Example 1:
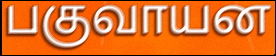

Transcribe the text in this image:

பகுவாயன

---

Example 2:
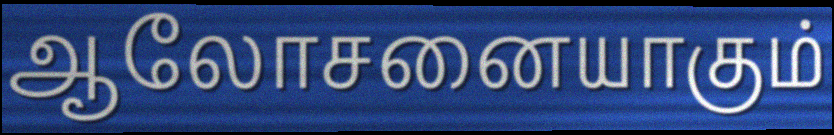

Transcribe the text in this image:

ஆலோசனையாகும்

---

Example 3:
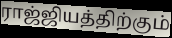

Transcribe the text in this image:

ராஜ்ஜியத்திற்கும்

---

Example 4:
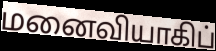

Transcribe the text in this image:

மனைவியாகிப்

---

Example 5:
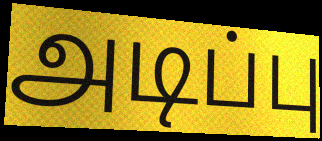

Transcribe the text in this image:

அடிப்பு